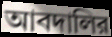
আবদালির